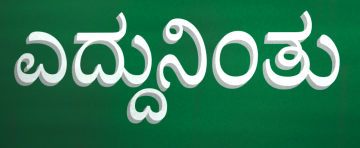
ಎದ್ದುನಿಂತು